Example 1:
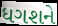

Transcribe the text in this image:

ધગશને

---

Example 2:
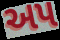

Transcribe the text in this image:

અપ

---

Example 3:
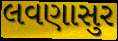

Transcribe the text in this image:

લવણાસુર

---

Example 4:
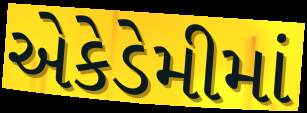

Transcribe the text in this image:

એકેડેમીમાં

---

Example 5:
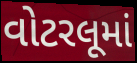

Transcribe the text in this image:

વોટરલૂમાં